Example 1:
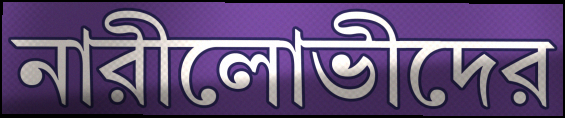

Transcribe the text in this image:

নারীলোভীদের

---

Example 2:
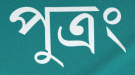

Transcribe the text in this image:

পুত্রং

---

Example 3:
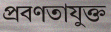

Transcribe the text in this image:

প্রবণতাযুক্ত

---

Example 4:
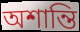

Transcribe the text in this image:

অশান্তি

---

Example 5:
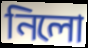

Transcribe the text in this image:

নিলো